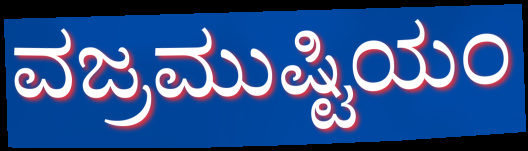
ವಜ್ರಮುಷ್ಟಿಯಂ